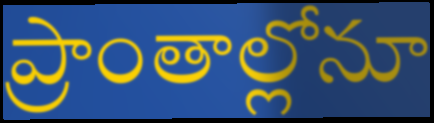
ప్రాంతాల్లోనూ